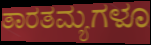
ತಾರತಮ್ಯಗಳೂ